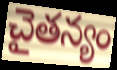
చైతన్యం